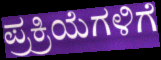
ಪ್ರಕ್ರಿಯೆಗಳಿಗೆ